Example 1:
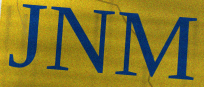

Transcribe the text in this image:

JNM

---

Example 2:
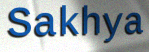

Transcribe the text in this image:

Sakhya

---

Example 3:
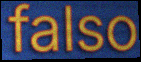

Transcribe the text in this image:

falso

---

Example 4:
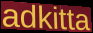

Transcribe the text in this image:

adkitta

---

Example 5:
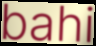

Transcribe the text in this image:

bahi